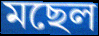
মছেল